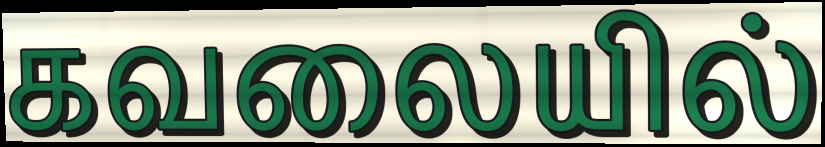
கவலையில்